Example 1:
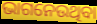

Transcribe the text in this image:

ଭାଗନେଉଥିବା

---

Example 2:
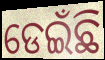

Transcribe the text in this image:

ଡେଇଁଛି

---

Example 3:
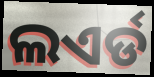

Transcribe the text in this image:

ଲଏର୍ଡ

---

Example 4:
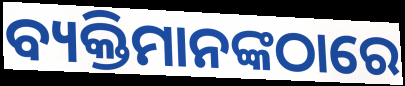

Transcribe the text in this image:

ବ୍ୟକ୍ତିମାନଙ୍କଠାରେ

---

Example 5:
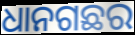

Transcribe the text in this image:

ଧାନଗଛର